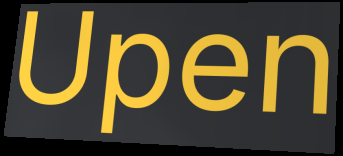
Upen